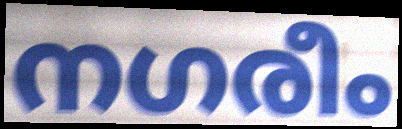
നഗരീം